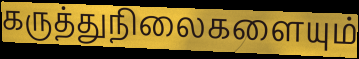
கருத்துநிலைகளையும்